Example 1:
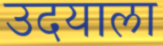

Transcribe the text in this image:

उदयाला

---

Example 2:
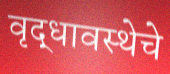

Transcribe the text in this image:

वृद्धावस्थेचे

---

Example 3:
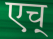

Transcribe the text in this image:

एच्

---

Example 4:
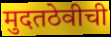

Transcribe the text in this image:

मुदतठेवीची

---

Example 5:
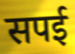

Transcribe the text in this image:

सपई